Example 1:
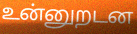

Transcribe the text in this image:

உன்னுறடன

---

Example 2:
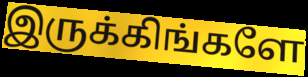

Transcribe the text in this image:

இருக்கிங்களே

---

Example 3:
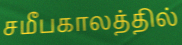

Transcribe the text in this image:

சமீபகாலத்தில்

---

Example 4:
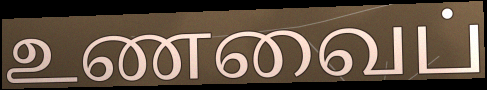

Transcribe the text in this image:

உணவைப்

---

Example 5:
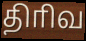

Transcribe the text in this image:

திரிவ